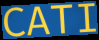
CATI